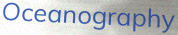
Oceanography